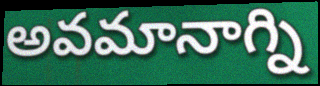
అవమానాగ్ని